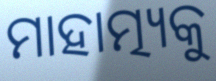
ମାହାତ୍ମ୍ୟକୁ